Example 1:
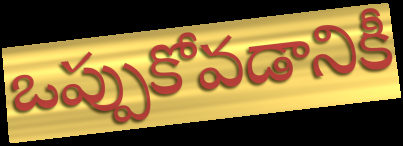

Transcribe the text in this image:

ఒప్పుకోవడానికీ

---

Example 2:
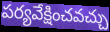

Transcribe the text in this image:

పర్యవేక్షించవచ్చు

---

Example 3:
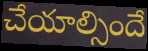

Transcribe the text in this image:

చేయాల్సిందే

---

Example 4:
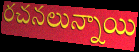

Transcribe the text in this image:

రచనలున్నాయి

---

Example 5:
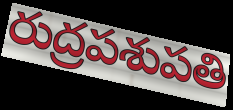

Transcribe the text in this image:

రుద్రపశుపతి